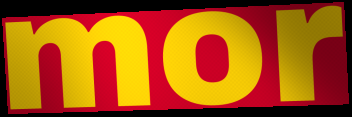
mor